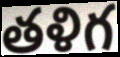
తళిగ